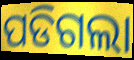
ପଡିଗଲା